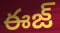
ఈజ్